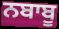
ਨਬਾਬੂ